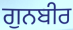
ਗੁਨਬੀਰ